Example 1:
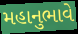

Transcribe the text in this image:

મહાનુભાવે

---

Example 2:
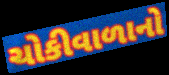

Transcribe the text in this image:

ચોકીવાળાનો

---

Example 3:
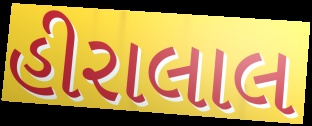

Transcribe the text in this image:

હીરાલાલ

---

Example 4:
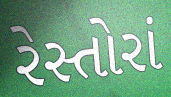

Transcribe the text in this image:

રેસ્તોરાં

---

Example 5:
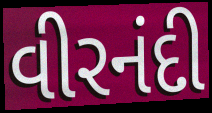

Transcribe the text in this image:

વીરનંદી